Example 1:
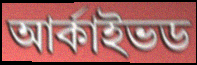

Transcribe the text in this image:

আর্কাইভড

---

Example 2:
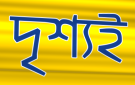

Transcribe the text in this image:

দৃশ্যই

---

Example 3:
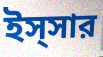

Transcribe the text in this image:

ইস্সার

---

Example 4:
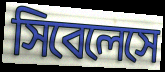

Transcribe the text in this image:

সিবেলেসে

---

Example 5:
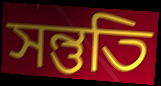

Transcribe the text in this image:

সন্তুতি